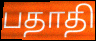
பதாதி